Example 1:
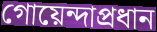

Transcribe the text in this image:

গোয়েন্দাপ্রধান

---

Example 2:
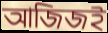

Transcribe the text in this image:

আজিজই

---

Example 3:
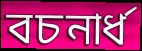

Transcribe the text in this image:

বচনার্ধ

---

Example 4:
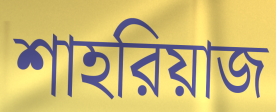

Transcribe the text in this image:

শাহরিয়াজ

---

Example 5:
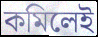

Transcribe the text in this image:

কমিলেই